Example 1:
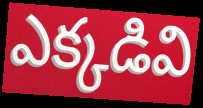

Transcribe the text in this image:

ఎక్కడివి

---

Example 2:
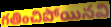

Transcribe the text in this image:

గతించిపోయినవి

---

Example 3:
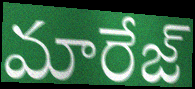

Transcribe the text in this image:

మారేజ్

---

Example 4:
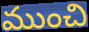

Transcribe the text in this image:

ముంచి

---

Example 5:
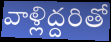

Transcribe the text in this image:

వాళ్లిద్దరితో